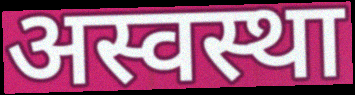
अस्वस्था